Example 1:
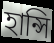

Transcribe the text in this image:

হান্সি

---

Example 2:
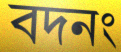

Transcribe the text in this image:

বদনং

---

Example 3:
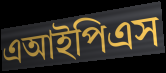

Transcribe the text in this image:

এআইপিএস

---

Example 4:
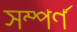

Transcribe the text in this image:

সম্পর্ণ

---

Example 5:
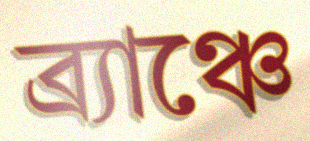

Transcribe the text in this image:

ব্র্যাঞ্চে